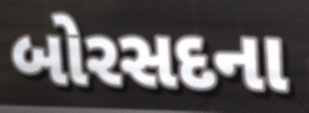
બોરસદના